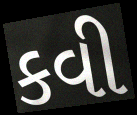
કવી